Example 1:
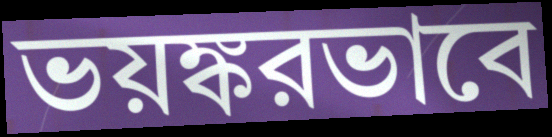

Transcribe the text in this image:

ভয়ঙ্করভাবে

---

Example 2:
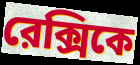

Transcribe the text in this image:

রেক্সিকে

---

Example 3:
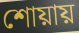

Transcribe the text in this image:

শোয়ায়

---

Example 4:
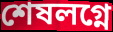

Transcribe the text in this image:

শেষলগ্নে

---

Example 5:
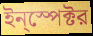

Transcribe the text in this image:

ইন্‌স্পেক্টর